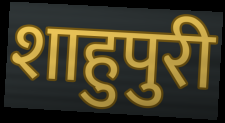
शाहुपुरी